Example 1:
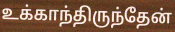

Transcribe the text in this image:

உக்காந்திருந்தேன்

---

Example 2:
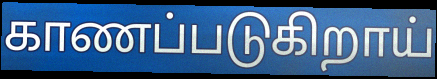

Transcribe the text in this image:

காணப்படுகிறாய்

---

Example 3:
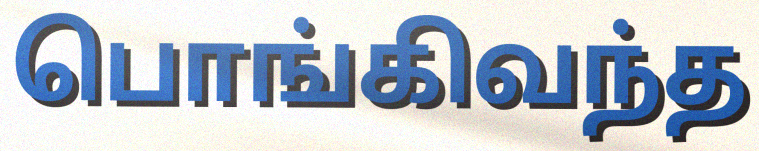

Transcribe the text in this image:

பொங்கிவந்த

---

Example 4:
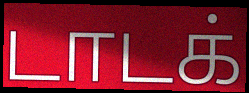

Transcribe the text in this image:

டாடக்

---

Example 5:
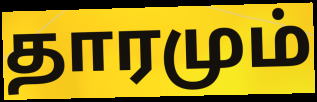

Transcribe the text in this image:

தாரமும்